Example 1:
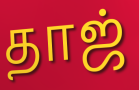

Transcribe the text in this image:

தாஜ்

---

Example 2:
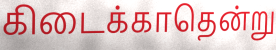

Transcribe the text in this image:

கிடைக்காதென்று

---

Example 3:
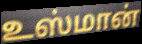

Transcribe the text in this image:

உஸ்மான்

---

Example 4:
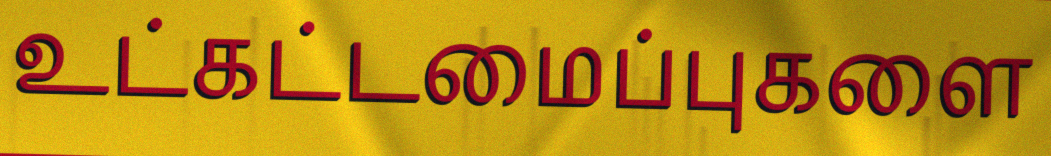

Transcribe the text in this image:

உட்கட்டமைப்புகளை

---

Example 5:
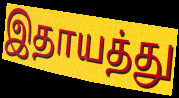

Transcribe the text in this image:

இதாயத்து